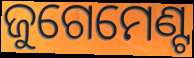
ଜୁଗେମେଣ୍ଟ